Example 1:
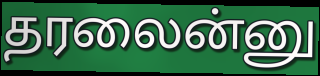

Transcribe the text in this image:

தரலைன்னு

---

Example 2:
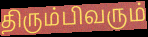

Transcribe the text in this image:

திரும்பிவரும்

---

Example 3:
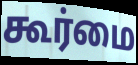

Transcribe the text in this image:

கூர்மை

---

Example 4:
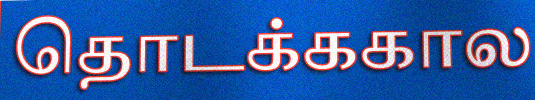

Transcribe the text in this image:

தொடக்ககால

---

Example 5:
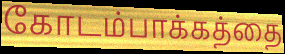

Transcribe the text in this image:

கோடம்பாக்கத்தை